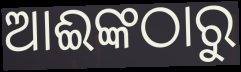
ଆଈଙ୍କଠାରୁ